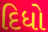
દિધો